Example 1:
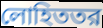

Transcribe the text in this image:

লোহিততর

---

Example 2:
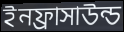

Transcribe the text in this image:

ইনফ্রাসাউন্ড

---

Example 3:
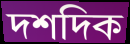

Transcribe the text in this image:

দশদিক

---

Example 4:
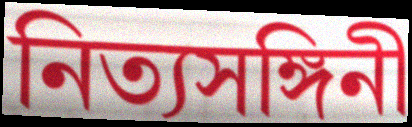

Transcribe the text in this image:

নিত্যসঙ্গিনী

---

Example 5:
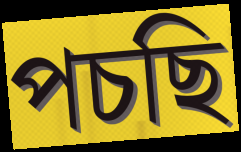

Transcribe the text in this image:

পচছি